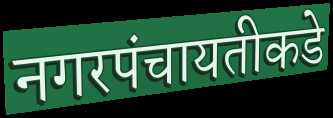
नगरपंचायतीकडे